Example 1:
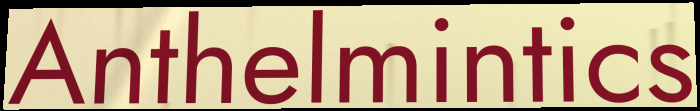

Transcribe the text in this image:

Anthelmintics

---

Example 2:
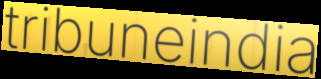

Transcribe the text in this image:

tribuneindia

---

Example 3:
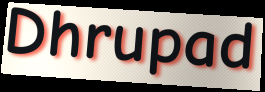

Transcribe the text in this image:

Dhrupad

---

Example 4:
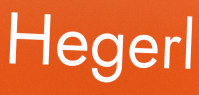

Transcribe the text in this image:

Hegerl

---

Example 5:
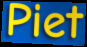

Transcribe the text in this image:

Piet